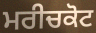
ਮਰੀਚਕੋਟ